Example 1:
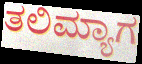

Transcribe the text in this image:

ತಲಿಮ್ಯಾಗ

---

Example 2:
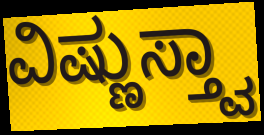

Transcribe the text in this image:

ವಿಷ್ಣುಸ್ತ್ವಾ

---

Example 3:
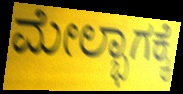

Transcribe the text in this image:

ಮೇಲ್ಭಾಗಕ್ಕೆ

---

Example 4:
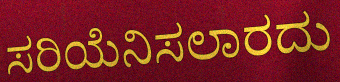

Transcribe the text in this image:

ಸರಿಯೆನಿಸಲಾರದು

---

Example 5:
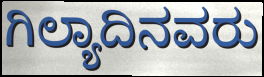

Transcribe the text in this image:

ಗಿಲ್ಯಾದಿನವರು